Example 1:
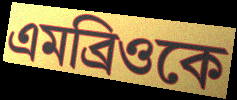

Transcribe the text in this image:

এমব্রিওকে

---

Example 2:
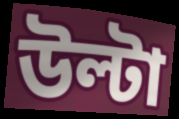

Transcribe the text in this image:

উল্টা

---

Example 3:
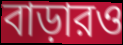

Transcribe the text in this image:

বাড়ারও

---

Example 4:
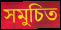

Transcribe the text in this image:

সমুচিত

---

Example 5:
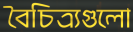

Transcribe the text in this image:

বৈচিত্র্যগুলো